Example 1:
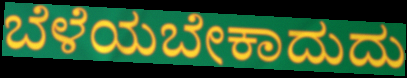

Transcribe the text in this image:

ಬೆಳೆಯಬೇಕಾದುದು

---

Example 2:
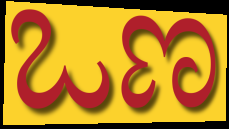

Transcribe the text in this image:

ಒಣ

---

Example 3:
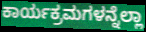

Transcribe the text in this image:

ಕಾರ್ಯಕ್ರಮಗಳನ್ನೆಲ್ಲಾ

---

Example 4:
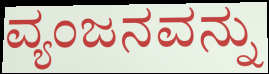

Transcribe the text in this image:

ವ್ಯಂಜನವನ್ನು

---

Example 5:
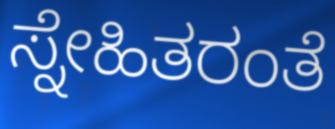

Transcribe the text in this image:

ಸ್ನೇಹಿತರಂತೆ